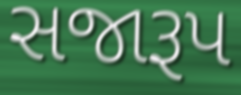
સજારૂપ